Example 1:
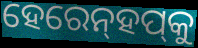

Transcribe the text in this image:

ହେରେନ୍‌ହପ୍‌କୁ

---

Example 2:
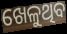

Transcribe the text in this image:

ଖେଳୁଥିବ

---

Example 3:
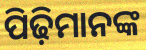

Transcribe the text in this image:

ପିଢ଼ିମାନଙ୍କ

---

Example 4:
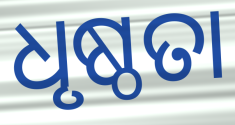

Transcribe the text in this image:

ଧୃଷ୍ଠତା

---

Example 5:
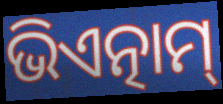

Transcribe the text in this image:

ଭିଏତ୍ନାମ୍